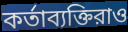
কর্তাব্যক্তিরাও